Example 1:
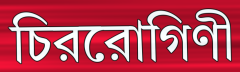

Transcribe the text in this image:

চিররোগিণী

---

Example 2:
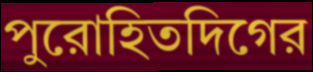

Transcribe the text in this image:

পুরোহিতদিগের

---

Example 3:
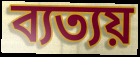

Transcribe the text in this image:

ব্যত্যয়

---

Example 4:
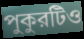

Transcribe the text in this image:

পুকুরটিও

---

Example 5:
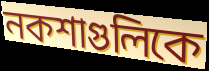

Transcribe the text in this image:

নকশাগুলিকে